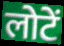
लोटें